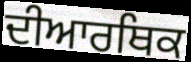
ਦੀਆਰਥਿਕ